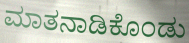
ಮಾತನಾಡಿಕೊಂಡು